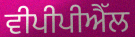
ਵੀਪੀਪੀਐੱਲ